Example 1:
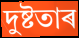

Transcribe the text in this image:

দুষ্টতাৰ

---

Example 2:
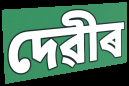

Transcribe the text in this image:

দেৱীৰ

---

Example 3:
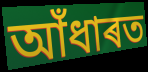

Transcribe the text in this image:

আঁধাৰত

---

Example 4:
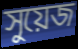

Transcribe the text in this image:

সুয়েজ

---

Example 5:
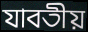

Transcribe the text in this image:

যাবতীয়